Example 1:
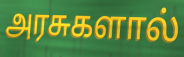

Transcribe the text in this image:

அரசுகளால்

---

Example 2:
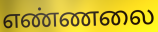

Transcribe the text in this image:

எண்ணலை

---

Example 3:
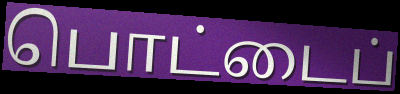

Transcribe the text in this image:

பொட்டைப்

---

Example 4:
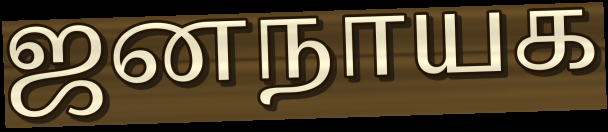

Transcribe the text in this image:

ஜனநாயக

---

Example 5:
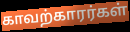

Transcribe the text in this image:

காவற்காரர்கள்